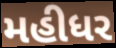
મહીધર